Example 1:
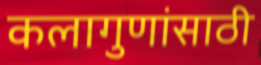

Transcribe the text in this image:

कलागुणांसाठी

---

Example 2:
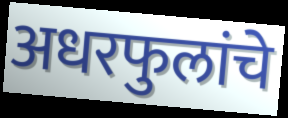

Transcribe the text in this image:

अधरफुलांचे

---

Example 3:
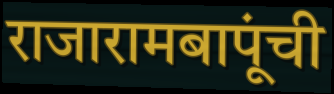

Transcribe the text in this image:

राजारामबापूंची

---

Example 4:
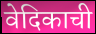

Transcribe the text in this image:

वेदिकाची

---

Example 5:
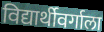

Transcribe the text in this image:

विद्यार्थीवर्गाला